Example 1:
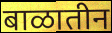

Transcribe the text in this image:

बाळातीन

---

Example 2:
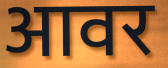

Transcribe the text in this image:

आवर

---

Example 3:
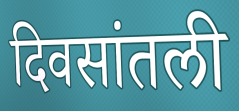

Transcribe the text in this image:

दिवसांतली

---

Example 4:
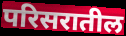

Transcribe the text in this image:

परिसरातील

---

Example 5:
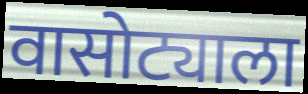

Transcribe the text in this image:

वासोट्याला